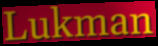
Lukman